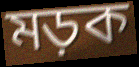
মড়ক